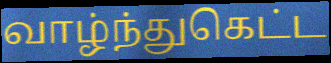
வாழ்ந்துகெட்ட